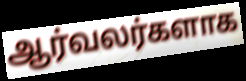
ஆர்வலர்களாக